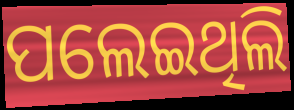
ପଲେଇଥିଲି